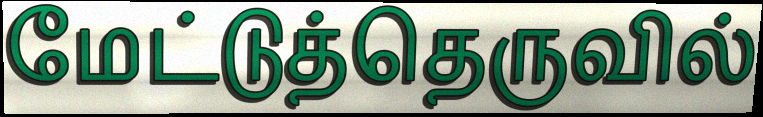
மேட்டுத்தெருவில்